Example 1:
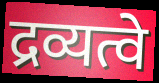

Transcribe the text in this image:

द्रव्यत्वे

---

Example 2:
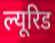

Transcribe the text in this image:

ल्यूरिड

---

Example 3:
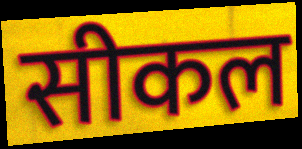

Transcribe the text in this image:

सीकल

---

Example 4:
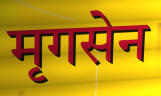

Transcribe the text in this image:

मृगसेन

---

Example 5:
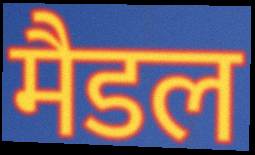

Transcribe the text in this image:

मैडल